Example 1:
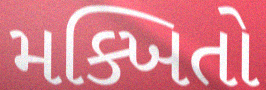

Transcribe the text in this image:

મક્ખિતો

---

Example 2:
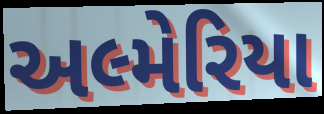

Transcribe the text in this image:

અલ્મેરિયા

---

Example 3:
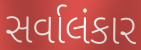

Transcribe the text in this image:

સર્વાલંકાર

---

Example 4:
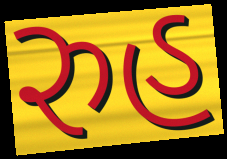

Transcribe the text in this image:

રુહ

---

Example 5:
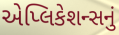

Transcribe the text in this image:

એપ્લિકેશન્સનું